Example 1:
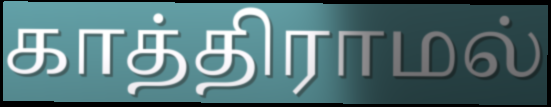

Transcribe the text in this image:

காத்திராமல்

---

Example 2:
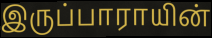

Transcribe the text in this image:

இருப்பாராயின்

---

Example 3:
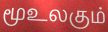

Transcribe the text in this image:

மூஉலகும்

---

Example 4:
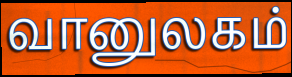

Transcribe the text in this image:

வானுலகம்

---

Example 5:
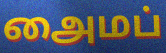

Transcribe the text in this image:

அைமப்